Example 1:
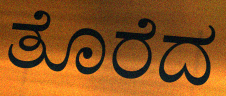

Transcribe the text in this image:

ತೊರೆದ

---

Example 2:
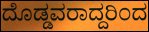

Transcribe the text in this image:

ದೊಡ್ಡವರಾದ್ದರಿಂದ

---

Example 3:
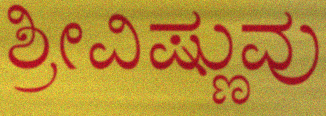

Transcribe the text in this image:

ಶ್ರೀವಿಷ್ಣುವು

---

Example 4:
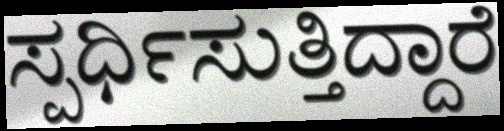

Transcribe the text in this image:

ಸ್ಪರ್ಧಿಸುತ್ತಿದ್ದಾರೆ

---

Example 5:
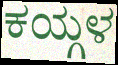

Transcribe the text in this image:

ಕಯ್ಗಳ